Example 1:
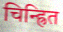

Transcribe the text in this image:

चिन्ह्रित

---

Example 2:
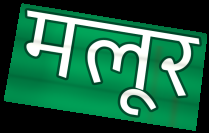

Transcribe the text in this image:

मलूर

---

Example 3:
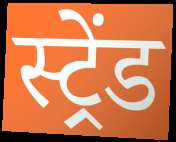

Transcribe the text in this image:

स्ट्रेंड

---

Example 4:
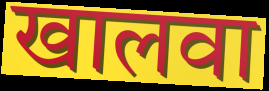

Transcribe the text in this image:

खालवा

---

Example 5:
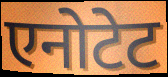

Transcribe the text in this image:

एनोटेट